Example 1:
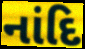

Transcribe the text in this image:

નાંદિ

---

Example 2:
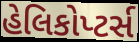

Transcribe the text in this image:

હેલિકોપ્ટર્સ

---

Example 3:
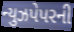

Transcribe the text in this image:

ન્યુઝપેપરની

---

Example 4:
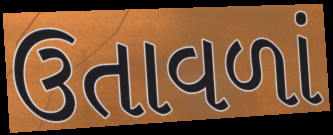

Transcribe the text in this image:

ઉતાવળાં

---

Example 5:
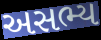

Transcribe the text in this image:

અસભ્ય